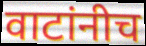
वाटांनीच